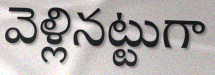
వెళ్లినట్టుగా